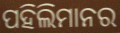
ପହିଲିମାନର